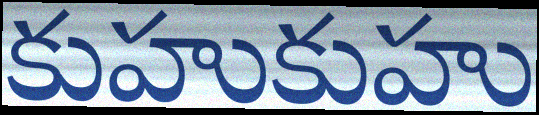
కుహుకుహు